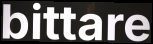
bittare